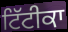
ਟਿੱਟੀਕਾ